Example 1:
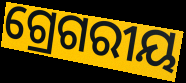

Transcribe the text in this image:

ଗ୍ରେଗରୀୟ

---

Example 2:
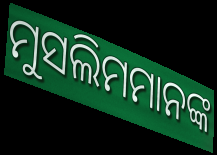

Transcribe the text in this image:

ମୁସଲିମମାନଙ୍କ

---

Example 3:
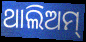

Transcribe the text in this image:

ଥାଲିଅମ୍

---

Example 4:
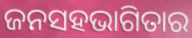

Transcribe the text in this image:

ଜନସହଭାଗିତାର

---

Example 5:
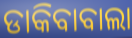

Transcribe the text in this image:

ଡାକିବାବାଲା